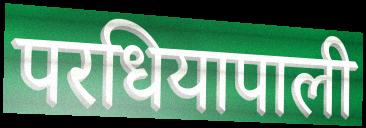
परधियापाली